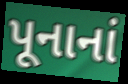
પૂનાનાં